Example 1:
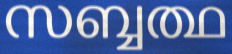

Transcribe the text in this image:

സബ്ബത്ഥ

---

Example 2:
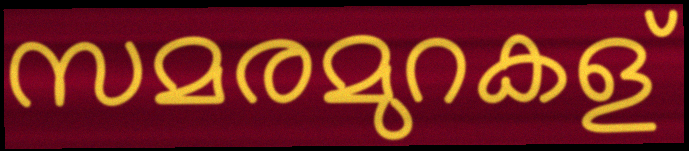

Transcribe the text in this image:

സമരമുറകള്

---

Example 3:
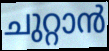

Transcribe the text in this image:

ചുറ്റാൻ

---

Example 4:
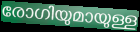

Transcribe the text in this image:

രോഗിയുമായുള്ള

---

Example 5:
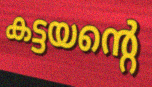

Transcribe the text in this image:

കട്ടയന്റെ